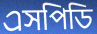
এসপিডি